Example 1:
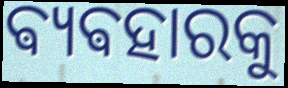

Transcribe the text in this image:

ଵ୍ୟଵହାରକୁ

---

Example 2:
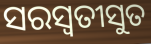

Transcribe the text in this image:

ସରସ୍ୱତୀସୁତ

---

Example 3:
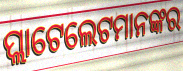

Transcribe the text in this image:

ପ୍ଲାଟେଲେଟମାନଙ୍କର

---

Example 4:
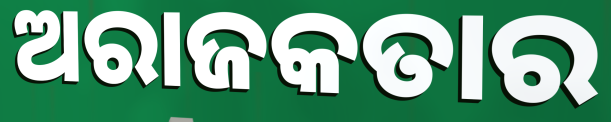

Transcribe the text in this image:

ଅରାଜକତାର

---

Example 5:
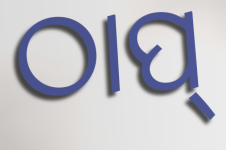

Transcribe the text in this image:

ଠାପ୍